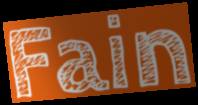
Fain